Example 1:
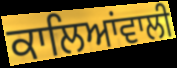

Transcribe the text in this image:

ਕਾਲਿਆਂਵਾਲੀ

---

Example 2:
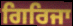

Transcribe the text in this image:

ਗਿਰਿਜਾ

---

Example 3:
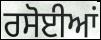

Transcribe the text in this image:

ਰਸੋਈਆਂ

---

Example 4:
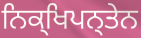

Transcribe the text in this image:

ਨਿਕ੍ਖਿਪਨ੍ਤੇਨ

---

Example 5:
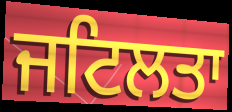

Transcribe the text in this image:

ਜਟਿਲਤਾ